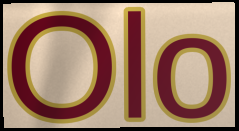
Olo